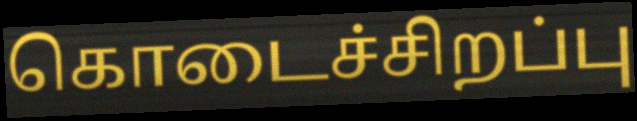
கொடைச்சிறப்பு